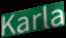
Karla